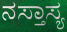
ನಸ್ತಾಸ್ಯ